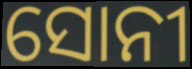
ସୋନୀ